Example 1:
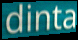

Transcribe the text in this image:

dinta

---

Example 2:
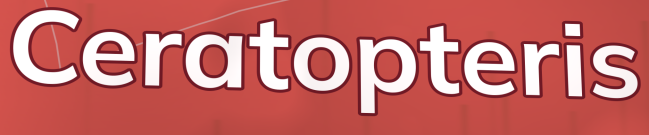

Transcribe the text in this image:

Ceratopteris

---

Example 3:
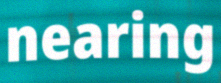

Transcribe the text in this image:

nearing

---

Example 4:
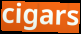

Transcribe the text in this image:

cigars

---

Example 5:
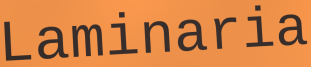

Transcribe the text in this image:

Laminaria